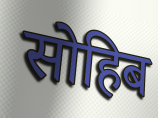
सोहिब